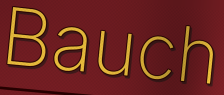
Bauch